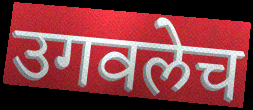
उगवलेच